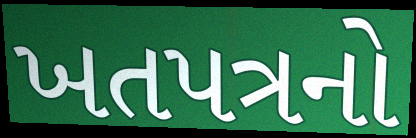
ખતપત્રનો